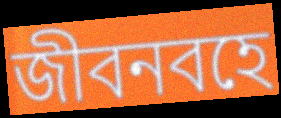
জীবনবহে